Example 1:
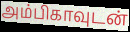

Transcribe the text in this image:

அம்பிகாவுடன்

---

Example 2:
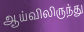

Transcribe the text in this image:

ஆய்விலிருந்து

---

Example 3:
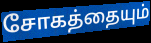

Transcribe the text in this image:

சோகத்தையும்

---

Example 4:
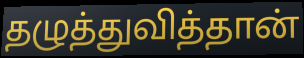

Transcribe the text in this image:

தழுத்துவித்தான்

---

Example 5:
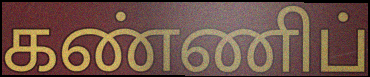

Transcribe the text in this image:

கண்ணிப்